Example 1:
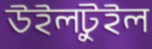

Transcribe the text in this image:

উইলটুইল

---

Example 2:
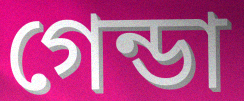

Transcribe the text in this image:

গেন্ডা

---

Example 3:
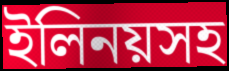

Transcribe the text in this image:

ইলিনয়সহ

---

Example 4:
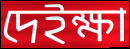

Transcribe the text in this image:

দেইক্ষা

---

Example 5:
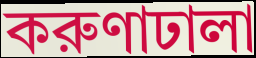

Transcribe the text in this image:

করুণাঢালা